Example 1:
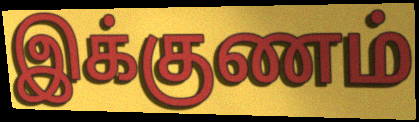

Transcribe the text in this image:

இக்குணம்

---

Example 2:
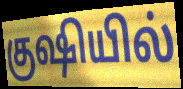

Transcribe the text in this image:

குஷியில்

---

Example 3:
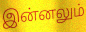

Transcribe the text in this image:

இன்னலும்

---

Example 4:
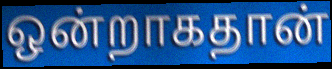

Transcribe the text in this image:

ஒன்றாகதான்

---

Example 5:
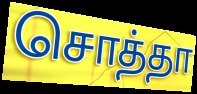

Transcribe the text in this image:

சொத்தா